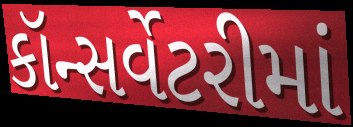
કૉન્સર્વેટરીમાં